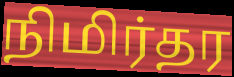
நிமிர்தர